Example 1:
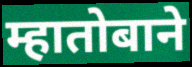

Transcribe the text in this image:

म्हातोबाने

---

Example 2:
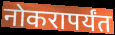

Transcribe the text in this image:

नोकरापर्यंत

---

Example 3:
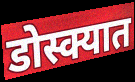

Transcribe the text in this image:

डोस्क्यात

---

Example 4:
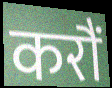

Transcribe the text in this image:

करौं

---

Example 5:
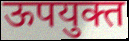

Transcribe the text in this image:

ऊपयुक्त